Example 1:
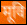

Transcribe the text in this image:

मूवि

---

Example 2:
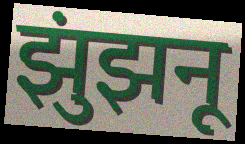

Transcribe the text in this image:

झुंझनू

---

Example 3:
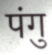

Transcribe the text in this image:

पंगु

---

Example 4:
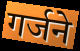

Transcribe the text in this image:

गर्जने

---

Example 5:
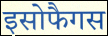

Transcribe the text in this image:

इसोफैगस